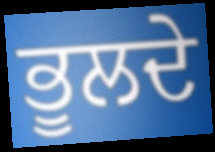
ਭੂਲਦੇ